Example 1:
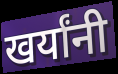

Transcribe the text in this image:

खर्यांनी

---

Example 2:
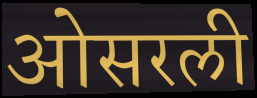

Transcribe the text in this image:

ओसरली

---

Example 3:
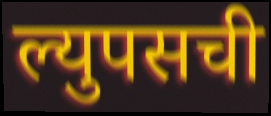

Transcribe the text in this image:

ल्युपसची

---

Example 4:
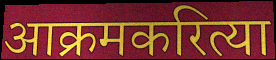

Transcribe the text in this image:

आक्रमकरित्या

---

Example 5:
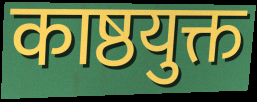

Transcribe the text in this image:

काष्ठयुक्त